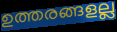
ഉത്തരങ്ങളല്ല